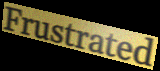
Frustrated